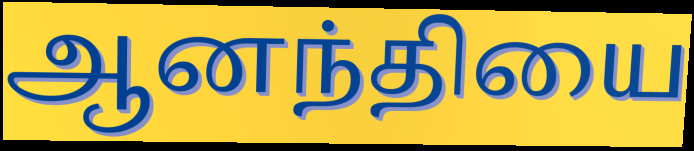
ஆனந்தியை